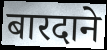
बारदाने